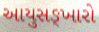
આયુસઙ્ખારો